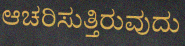
ಆಚರಿಸುತ್ತಿರುವುದು